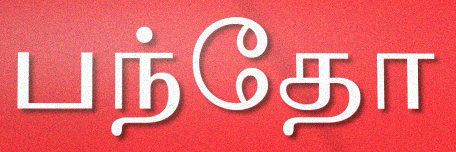
பந்தோ